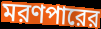
মরণপারের